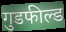
गुडफील्ड